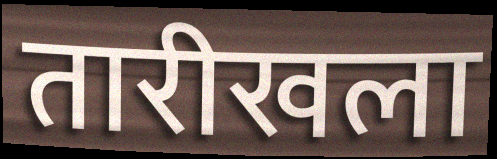
तारीखला